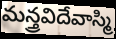
మన్త్రవిదేవాస్మి